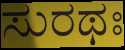
ಸುರಥಃ